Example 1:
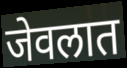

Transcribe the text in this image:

जेवलात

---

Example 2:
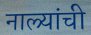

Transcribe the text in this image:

नाल्यांची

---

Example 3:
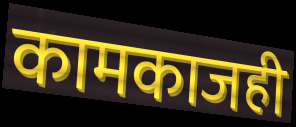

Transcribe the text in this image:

कामकाजही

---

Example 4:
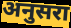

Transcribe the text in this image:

अनुसरा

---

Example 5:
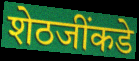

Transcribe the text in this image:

शेठजींकडे